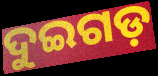
ଦୁଇଗଡ଼